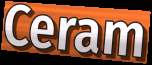
Ceram